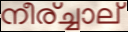
നീര്ച്ചാല്